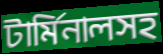
টার্মিনালসহ